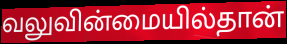
வலுவின்மையில்தான்